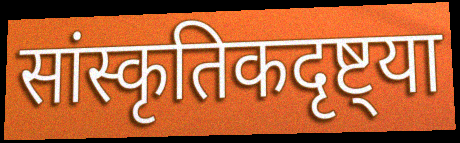
सांस्कृतिकदृष्ट्या